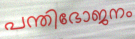
പന്തിഭോജനം